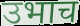
उभाच